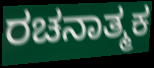
ರಚನಾತ್ಮಕ